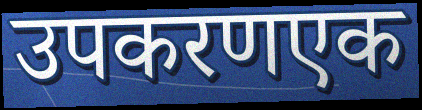
उपकरणएक